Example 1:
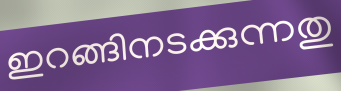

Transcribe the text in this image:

ഇറങ്ങിനടക്കുന്നതു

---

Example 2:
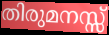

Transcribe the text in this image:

തിരുമനസ്സ്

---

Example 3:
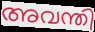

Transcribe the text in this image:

അവന്തി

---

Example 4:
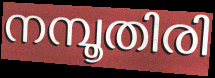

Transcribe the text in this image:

നമ്പൂതിരി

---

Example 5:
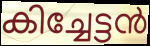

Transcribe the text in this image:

കിച്ചേട്ടൻ